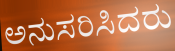
ಅನುಸರಿಸಿದರು